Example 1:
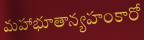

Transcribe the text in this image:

మహాభూతాన్యహంకారో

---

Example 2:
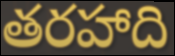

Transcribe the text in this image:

తరహాది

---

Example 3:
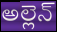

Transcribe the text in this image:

అల్లెన్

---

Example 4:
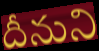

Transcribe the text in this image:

దీనుని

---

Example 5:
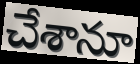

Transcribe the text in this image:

చేశానూ